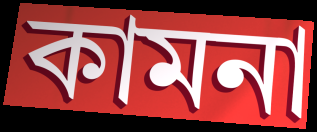
কামনা